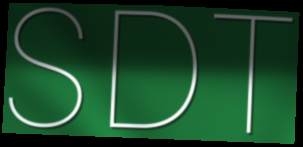
SDT